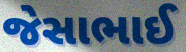
જેસાભાઈ